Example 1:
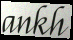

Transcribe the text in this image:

ankh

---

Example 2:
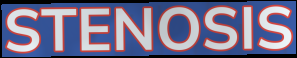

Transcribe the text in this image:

STENOSIS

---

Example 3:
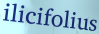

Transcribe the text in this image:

ilicifolius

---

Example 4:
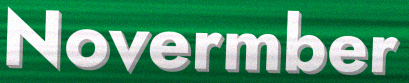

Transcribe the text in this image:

Novermber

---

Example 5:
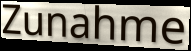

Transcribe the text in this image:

Zunahme